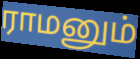
ராமனும்